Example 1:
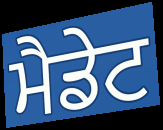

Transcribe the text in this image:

ਮੈਡੇਟ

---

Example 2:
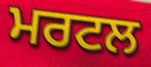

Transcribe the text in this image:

ਮਰਟਲ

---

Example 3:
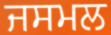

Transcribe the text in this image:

ਜਸਮਲ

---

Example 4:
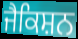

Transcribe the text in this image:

ਜੈਕਿਸ਼ਨ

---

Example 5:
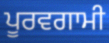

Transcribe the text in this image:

ਪੂਰਵਗਾਮੀ